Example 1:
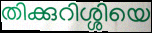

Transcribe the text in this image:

തിക്കുറിശ്ശിയെ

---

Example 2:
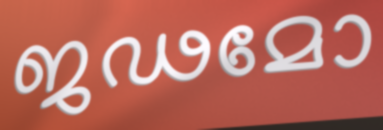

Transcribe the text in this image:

ജഢമോ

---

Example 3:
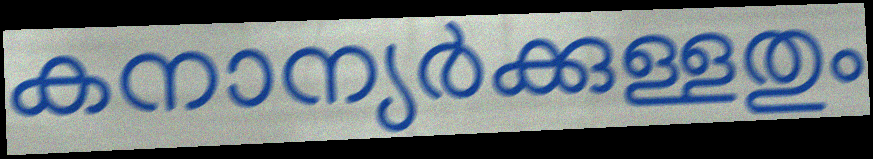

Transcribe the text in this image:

കനാന്യർക്കുള്ളതും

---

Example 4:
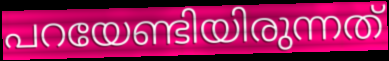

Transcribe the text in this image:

പറയേണ്ടിയിരുന്നത്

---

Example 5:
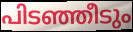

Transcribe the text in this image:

പിടഞ്ഞീടും